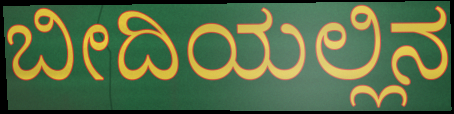
ಬೀದಿಯಲ್ಲಿನ